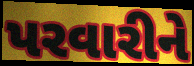
પરવારીને